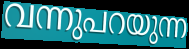
വന്നുപറയുന്ന